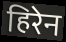
हिरेन